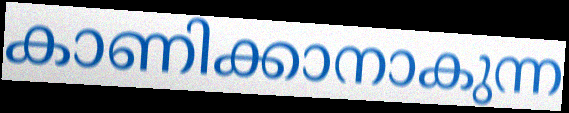
കാണിക്കാനാകുന്ന